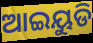
ଆଇୟୁଡି